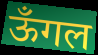
ऊँगल